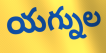
యగ్నుల